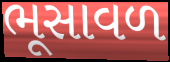
ભૂસાવળ